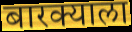
बारक्याला